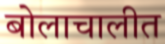
बोलाचालीत